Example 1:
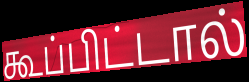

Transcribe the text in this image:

கூப்பிட்டால்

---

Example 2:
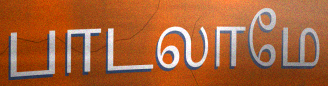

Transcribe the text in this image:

பாடலாமே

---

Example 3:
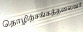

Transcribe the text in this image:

தொழிற்சங்கத்தலைவர்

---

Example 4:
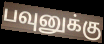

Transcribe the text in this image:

பவுனுக்கு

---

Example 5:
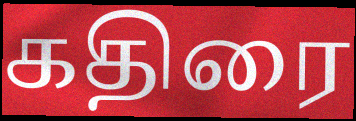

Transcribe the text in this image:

கதிரை